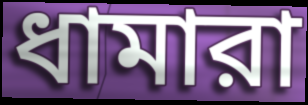
ধামারা